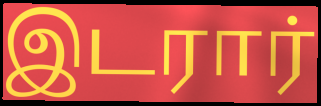
இடரார்